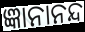
ଜ୍ଞାନାନନ୍ଦ